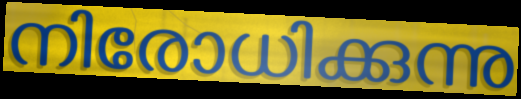
നിരോധിക്കുന്നു